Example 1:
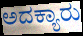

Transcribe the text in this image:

ಅದಕ್ಯಾರು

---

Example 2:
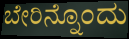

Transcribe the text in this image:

ಬೇರಿನ್ನೊಂದು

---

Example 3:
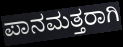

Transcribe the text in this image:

ಪಾನಮತ್ತರಾಗಿ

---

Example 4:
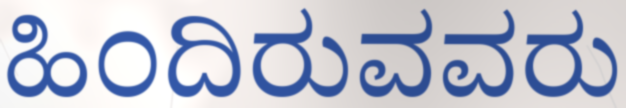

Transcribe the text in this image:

ಹಿಂದಿರುವವರು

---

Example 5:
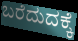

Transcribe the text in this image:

ಬರೆದುದಕ್ಕೆ